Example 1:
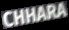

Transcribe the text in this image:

CHHARA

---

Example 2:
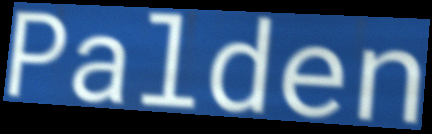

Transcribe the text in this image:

Palden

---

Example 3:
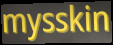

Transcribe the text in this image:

mysskin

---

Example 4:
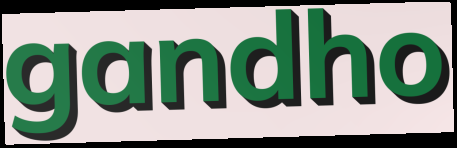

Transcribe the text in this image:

gandho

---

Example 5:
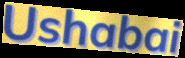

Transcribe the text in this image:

Ushabai